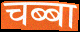
चब्बा